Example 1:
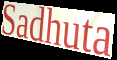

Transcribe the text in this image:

Sadhuta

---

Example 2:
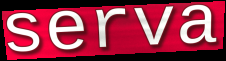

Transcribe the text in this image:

serva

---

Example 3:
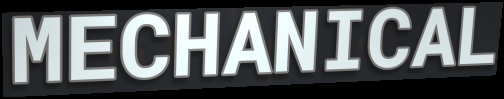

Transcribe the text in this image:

MECHANICAL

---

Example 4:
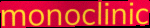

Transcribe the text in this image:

monoclinic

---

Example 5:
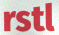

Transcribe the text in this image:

rstl